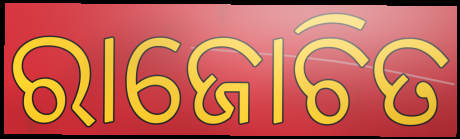
ରାଜୋଚିତ